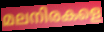
മലനിരകളെ